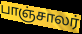
பாஞ்சாலர்